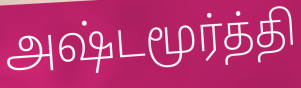
அஷ்டமூர்த்தி